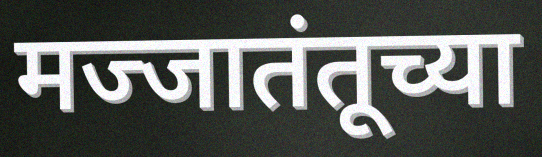
मज्जातंतूच्या